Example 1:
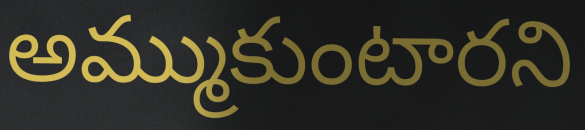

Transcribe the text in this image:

అమ్ముకుంటారని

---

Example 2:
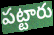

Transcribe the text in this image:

పట్టారు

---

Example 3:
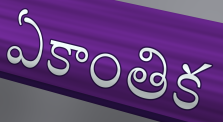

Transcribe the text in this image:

ఏకాంతిక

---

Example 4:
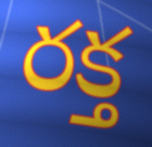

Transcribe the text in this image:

రక్త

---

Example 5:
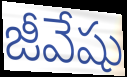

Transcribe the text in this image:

జీవేషు